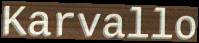
Karvallo